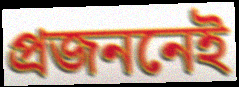
প্রজননেই